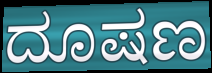
ದೂಷಣ